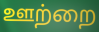
ஊற்றை